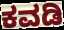
ಕವಡಿ